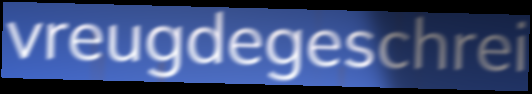
vreugdegeschrei